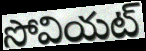
సోవియట్